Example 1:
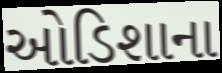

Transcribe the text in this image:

ઓડિશાના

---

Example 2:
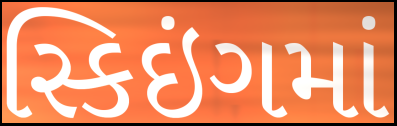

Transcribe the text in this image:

સ્કિઇંગમાં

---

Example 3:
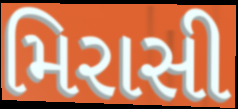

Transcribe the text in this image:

મિરાસી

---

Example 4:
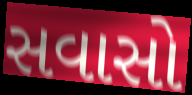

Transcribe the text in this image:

સવાસો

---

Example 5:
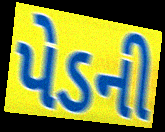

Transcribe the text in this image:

પેડની